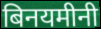
बिनयमीनी